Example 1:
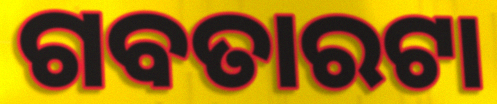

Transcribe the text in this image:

ଗବତାରଟା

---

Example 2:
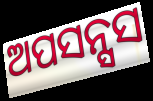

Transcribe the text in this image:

ଅପସନ୍ସସ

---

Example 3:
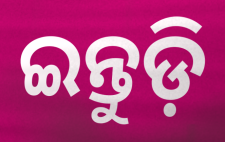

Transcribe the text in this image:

ଇନ୍ତୁଡ଼ି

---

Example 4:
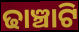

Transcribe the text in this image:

ଢାଞ୍ଚାଟି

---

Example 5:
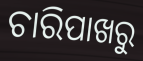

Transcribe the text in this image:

ଚାରିପାଖରୁ